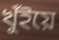
খুঁইয়ে